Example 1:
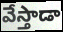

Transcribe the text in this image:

వేస్తాడా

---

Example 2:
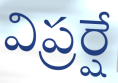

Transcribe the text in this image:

విప్రర్షే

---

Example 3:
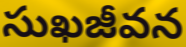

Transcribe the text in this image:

సుఖజీవన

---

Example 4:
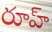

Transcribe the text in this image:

రూహ్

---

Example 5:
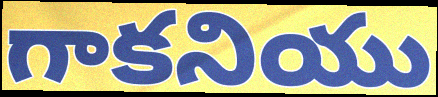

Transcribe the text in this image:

గాకనియు